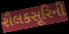
શૈલકસૂરિની